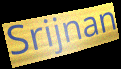
Srijnan